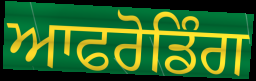
ਆਫਰੋਡਿੰਗ